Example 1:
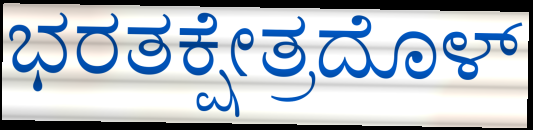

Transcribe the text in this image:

ಭರತಕ್ಷೇತ್ರದೊಳ್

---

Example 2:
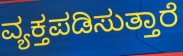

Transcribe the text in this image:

ವ್ಯಕ್ತಪಡಿಸುತ್ತಾರೆ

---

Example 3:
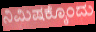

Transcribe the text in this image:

ನಿಮಿಷಕ್ಕೊಂದು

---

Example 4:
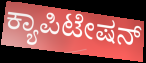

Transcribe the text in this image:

ಕ್ಯಾಪಿಟೇಷನ್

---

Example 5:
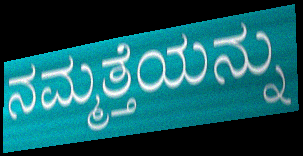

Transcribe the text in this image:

ನಮ್ಮತ್ತೆಯನ್ನು